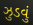
ઝુડવું